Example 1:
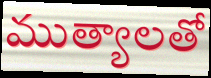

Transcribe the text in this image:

ముత్యాలతో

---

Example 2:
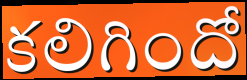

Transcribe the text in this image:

కలిగిందో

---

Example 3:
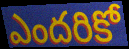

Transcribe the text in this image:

ఎందరికో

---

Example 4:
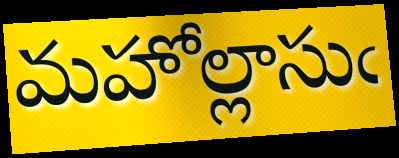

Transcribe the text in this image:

మహోల్లాసుఁ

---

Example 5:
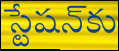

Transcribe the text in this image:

స్టేషన్‍కు